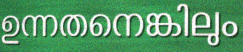
ഉന്നതനെങ്കിലും